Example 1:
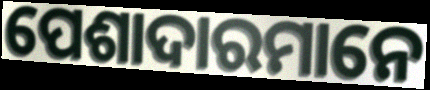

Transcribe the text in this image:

ପେଶାଦାରମାନେ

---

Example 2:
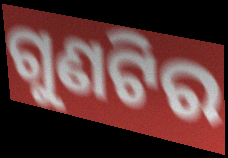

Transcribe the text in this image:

ଗୁଣଟିର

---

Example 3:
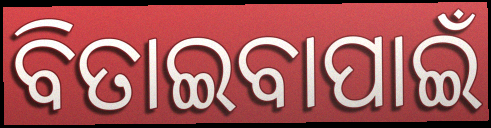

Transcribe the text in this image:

ବିତାଇବାପାଇଁ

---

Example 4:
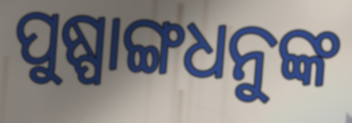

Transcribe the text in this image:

ପୁଷ୍ପାଙ୍ଗଧନୁଙ୍କ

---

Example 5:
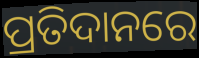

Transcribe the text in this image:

ପ୍ରତିଦାନରେ